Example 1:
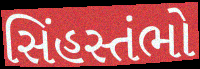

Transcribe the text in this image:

સિંહસ્તંભો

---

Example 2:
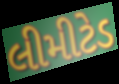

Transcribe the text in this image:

લીમીટેડ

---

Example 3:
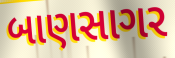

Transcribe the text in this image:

બાણસાગર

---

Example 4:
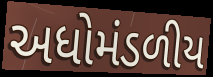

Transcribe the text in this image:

અધોમંડળીય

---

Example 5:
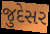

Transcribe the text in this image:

જુદેસર